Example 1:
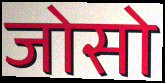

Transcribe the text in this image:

जोसो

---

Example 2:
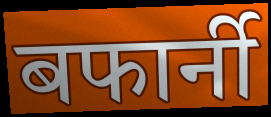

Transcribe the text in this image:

बफार्नी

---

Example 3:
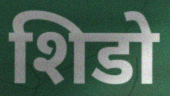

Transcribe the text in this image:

शिडो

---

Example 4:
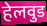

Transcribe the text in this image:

हेलवुड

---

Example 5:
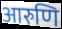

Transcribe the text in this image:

आरुणि